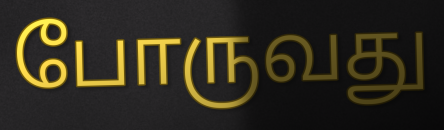
போருவது